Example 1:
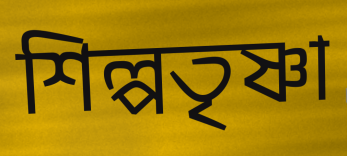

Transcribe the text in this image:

শিল্পতৃষ্ণা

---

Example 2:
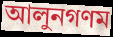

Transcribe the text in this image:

আলুনগণম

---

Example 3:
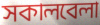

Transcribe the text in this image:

সকালবেলা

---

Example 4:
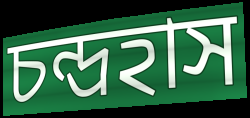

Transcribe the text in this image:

চন্দ্রহাস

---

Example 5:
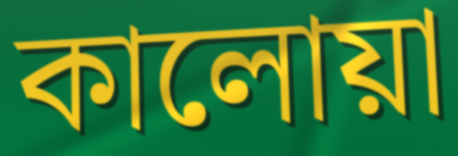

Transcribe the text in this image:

কালোয়া